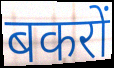
बकरों